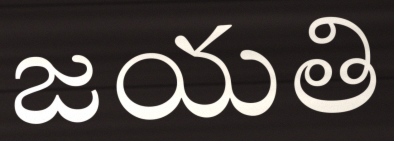
జయతి